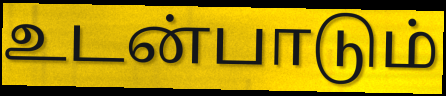
உடன்பாடும்